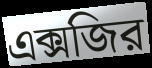
এক্সজির